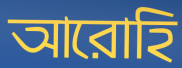
আরোহি